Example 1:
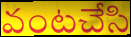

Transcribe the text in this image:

వంటచేసి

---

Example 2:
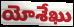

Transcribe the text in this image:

యోశేఖు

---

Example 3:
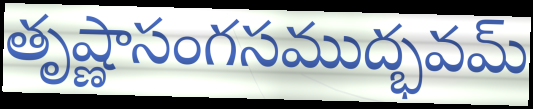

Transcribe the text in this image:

తృష్ణాసంగసముద్భవమ్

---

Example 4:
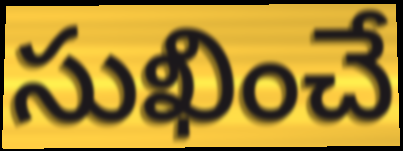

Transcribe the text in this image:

సుఖించే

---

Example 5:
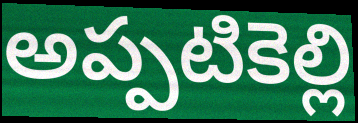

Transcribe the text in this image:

అప్పటికెల్లి